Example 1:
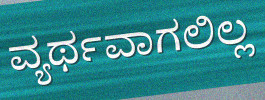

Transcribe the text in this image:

ವ್ಯರ್ಥವಾಗಲಿಲ್ಲ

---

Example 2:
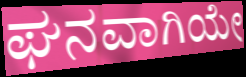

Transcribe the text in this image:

ಘನವಾಗಿಯೇ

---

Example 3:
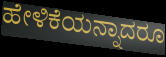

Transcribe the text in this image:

ಹೇಳಿಕೆಯನ್ನಾದರೂ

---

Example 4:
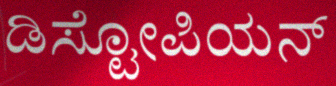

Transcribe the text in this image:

ಡಿಸ್ಟೋಪಿಯನ್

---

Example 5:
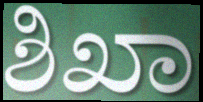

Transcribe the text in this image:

ಶಿಖಾ